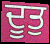
ਦੂਤੁ